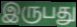
இருபது